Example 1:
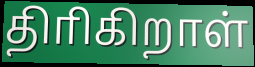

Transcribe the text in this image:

திரிகிறாள்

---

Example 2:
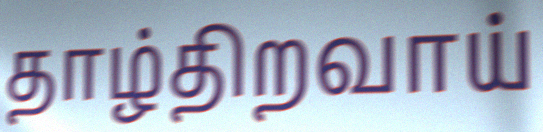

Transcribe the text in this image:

தாழ்திறவாய்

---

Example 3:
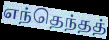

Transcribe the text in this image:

எந்தெந்தத்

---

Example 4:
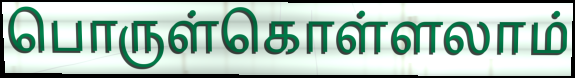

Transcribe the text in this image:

பொருள்கொள்ளலாம்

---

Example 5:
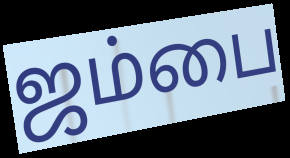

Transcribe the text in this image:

ஜம்பை